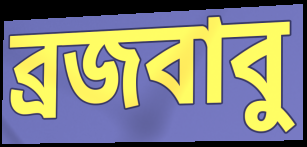
ব্রজবাবু